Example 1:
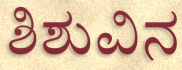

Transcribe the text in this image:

ಶಿಶುವಿನ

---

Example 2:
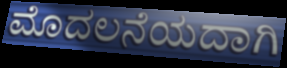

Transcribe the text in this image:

ಮೊದಲನೆಯದಾಗಿ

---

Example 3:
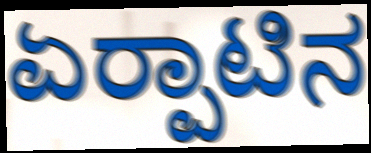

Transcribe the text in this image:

ಏರ‍್ಪಾಟಿನ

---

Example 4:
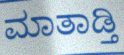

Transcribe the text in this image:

ಮಾತಾಡ್ತಿ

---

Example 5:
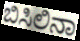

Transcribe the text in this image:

ಬಿಸಿಲಿನಾ